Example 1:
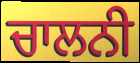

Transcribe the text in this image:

ਚਾਲਨੀ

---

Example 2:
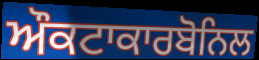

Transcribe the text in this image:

ਔਕਟਾਕਾਰਬੋਨਿਲ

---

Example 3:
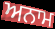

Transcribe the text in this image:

ਅਨਾਮ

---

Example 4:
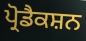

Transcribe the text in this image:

ਪ੍ਰੋਡੈਕਸ਼ਨ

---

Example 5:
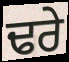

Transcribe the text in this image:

ਢਰੇ